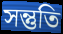
সন্তুতি